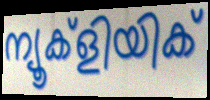
ന്യൂക്ളിയിക്